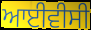
ਆਈਵੀਸੀ